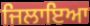
ਜਿਲਾਇਆ